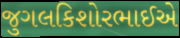
જુગલકિશોરભાઈએ